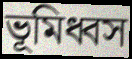
ভূমিধ্বস